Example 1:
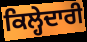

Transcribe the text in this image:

ਕਿਲ੍ਹੇਦਾਰੀ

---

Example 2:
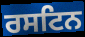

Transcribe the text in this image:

ਰਸਟਿਨ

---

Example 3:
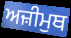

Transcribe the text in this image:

ਅਜ਼ੀਮੁਥ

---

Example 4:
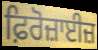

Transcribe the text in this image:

ਫ਼ਿਰੋਜ਼ਾਈਜ਼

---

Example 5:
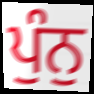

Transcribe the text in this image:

ਪੁੰਨੁ